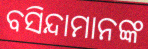
ବସିନ୍ଦାମାନଙ୍କ